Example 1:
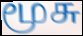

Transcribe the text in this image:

மூசு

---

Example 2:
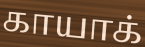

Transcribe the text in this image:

காயாக்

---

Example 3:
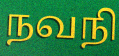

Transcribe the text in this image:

நவநி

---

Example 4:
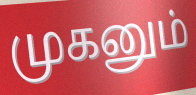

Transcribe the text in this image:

முகனும்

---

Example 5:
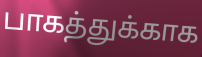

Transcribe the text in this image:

பாகத்துக்காக